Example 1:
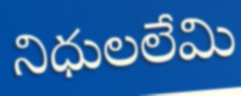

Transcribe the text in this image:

నిధులలేమి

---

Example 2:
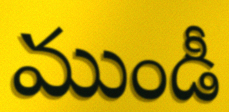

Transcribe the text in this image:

ముండీ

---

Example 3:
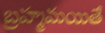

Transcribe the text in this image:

బ్రహ్మమయితే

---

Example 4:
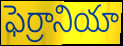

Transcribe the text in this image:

ఫెర్రానియా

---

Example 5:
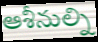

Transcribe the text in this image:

ఆశీనుల్ని